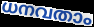
ധനവതാം